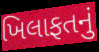
ખિલાફતનું